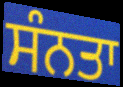
ਸੰਨਤਾ